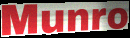
Munro